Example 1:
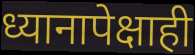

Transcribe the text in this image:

ध्यानापेक्षाही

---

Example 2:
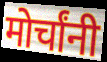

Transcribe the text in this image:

मोर्चांनी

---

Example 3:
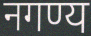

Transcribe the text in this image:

नगण्य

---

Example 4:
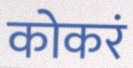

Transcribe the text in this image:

कोकरं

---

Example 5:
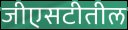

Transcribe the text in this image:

जीएसटीतील